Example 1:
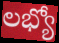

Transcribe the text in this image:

లభ్యో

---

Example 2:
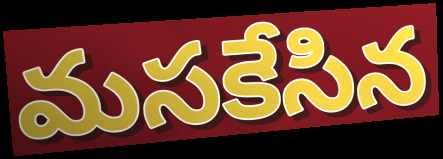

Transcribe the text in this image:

మసకేసిన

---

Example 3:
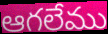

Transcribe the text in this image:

ఆగలేము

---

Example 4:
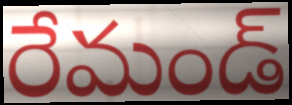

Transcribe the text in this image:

రేమండ్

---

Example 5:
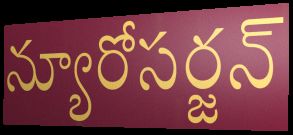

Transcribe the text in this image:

న్యూరోసర్జన్